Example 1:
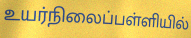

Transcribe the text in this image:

உயர்நிலைப்பள்ளியில்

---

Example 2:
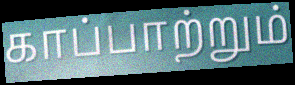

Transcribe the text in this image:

காப்பாற்றும்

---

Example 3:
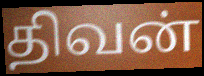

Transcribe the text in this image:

திவன்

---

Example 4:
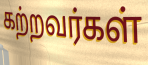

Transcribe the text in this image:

கற்றவர்கள்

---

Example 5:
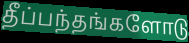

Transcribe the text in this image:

தீப்பந்தங்களோடு